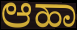
ಆಹಾ